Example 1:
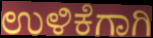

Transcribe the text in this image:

ಉಳಿಕೆಗಾಗಿ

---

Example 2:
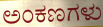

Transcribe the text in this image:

ಅಂಕಣಗಳು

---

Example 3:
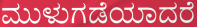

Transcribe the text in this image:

ಮುಳುಗಡೆಯಾದರೆ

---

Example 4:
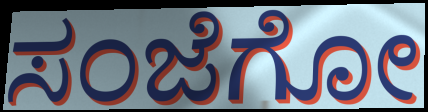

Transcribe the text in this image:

ಸಂಜೆಗೋ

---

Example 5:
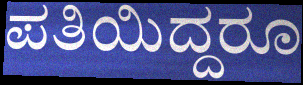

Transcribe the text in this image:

ಪತಿಯಿದ್ದರೂ